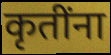
कृतींना